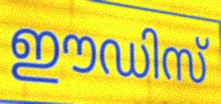
ഈഡിസ്